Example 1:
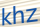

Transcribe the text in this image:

khz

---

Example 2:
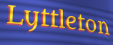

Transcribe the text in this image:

Lyttleton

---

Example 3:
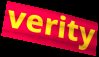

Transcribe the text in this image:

verity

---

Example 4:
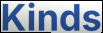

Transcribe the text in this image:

Kinds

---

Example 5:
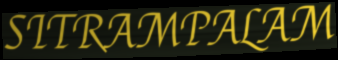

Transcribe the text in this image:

SITRAMPALAM